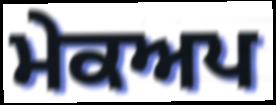
ਮੇਕਅਪ